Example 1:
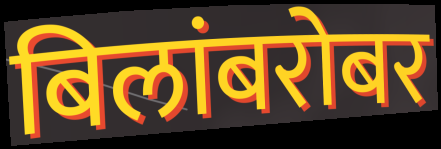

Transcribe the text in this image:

बिलांबरोबर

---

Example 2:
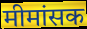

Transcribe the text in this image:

मीमांसक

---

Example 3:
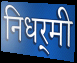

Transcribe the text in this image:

निधर्मी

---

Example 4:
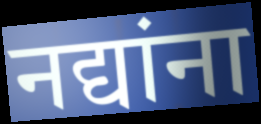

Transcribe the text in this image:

नद्यांना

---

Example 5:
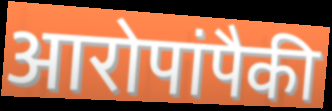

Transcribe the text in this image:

आरोपांपैकी